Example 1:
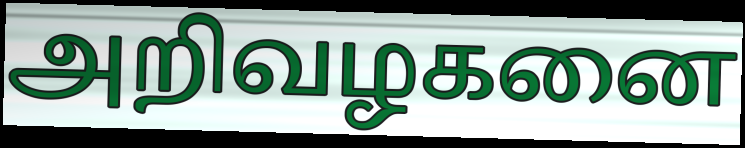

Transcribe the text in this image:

அறிவழகனை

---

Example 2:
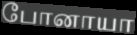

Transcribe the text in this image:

போனாயா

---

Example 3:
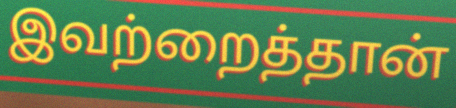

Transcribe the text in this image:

இவற்றைத்தான்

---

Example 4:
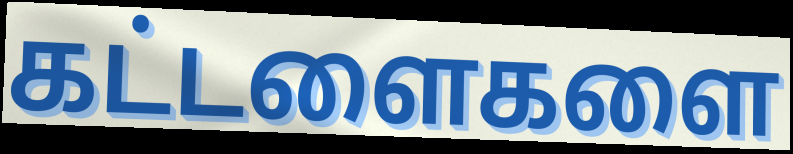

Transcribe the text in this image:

கட்டளைகளை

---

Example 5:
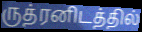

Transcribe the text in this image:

ருத்ரனிடத்தில்